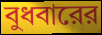
বুধবারের